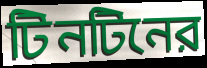
টিনটিনের